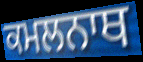
ਕਮਲਨਾਥ